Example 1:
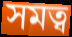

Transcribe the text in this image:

সমত্ব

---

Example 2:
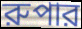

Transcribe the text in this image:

রুপার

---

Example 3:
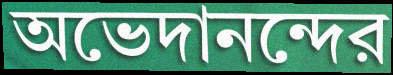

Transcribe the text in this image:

অভেদানন্দের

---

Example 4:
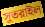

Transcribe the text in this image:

সুতরাইল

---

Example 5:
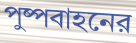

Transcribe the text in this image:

পুষ্পবাহনের